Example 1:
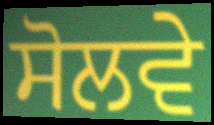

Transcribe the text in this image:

ਸੋਲਵੇ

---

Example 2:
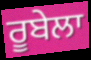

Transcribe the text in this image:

ਰੂਬੇਲਾ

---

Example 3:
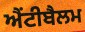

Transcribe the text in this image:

ਐਂਟੀਬੈਲਮ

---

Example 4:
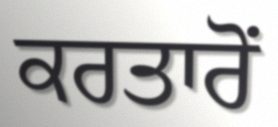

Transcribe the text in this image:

ਕਰਤਾਰੋਂ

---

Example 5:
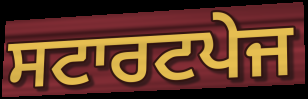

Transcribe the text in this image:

ਸਟਾਰਟਪੇਜ